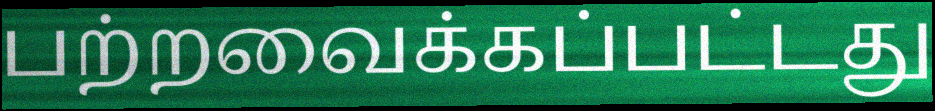
பற்றவைக்கப்பட்டது